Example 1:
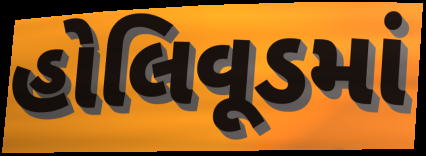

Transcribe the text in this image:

હોલિવૂડમાં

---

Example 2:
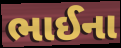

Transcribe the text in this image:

ભાઈના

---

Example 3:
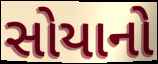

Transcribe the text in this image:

સોયાનો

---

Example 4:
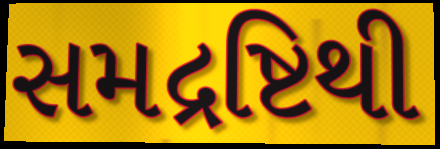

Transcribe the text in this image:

સમદ્રષ્ટિથી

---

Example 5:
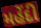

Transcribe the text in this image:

મહેંદી